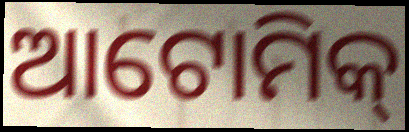
ଆଟୋମିକ୍